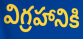
విగ్రహానికి